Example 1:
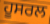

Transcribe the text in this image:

ਹੂਸਰਲ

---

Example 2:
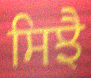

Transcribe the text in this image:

ਸਿਝੈ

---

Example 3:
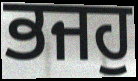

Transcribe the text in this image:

ਭਜਹੁ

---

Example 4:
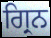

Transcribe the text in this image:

ਗ੍ਰਿਨ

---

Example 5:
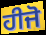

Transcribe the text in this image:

ਹੀਜੋ